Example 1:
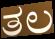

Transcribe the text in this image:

ತಲ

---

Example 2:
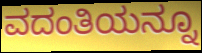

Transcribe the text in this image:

ವದಂತಿಯನ್ನೂ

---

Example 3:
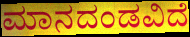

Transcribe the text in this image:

ಮಾನದಂಡವಿದೆ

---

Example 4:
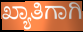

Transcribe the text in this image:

ಖ್ಯಾತಿಗಾಗಿ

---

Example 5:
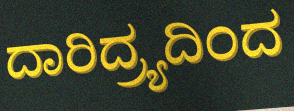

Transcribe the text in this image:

ದಾರಿದ್ರ್ಯದಿಂದ